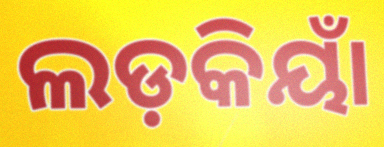
ଲଡ଼କିୟାଁ